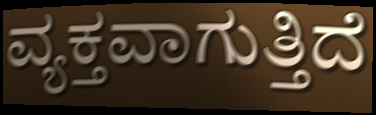
ವ್ಯಕ್ತವಾಗುತ್ತಿದೆ